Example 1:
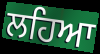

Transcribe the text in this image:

ਲਹਿਆ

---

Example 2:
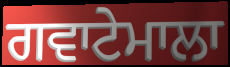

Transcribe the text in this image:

ਗਵਾਟੇਮਾਲਾ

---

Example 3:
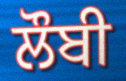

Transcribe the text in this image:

ਲੌਬੀ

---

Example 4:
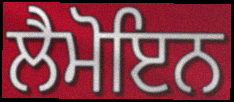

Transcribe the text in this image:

ਲੈਮੋਇਨ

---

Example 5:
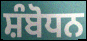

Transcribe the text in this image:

ਸ਼ੰਬੋਧਨ